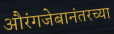
औरंगजेबानंतरच्या